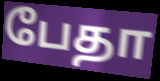
பேதா